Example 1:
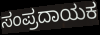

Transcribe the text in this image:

ಸಂಪ್ರದಾಯಕ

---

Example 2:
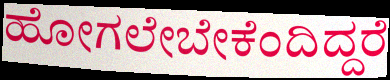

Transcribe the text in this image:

ಹೋಗಲೇಬೇಕೆಂದಿದ್ದರೆ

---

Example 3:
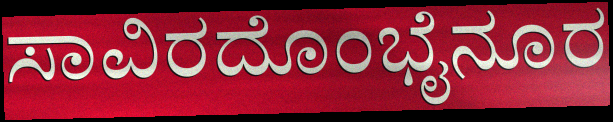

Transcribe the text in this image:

ಸಾವಿರದೊಂಭೈನೂರ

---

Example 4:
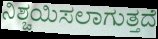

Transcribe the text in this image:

ನಿಶ್ಚಯಿಸಲಾಗುತ್ತದೆ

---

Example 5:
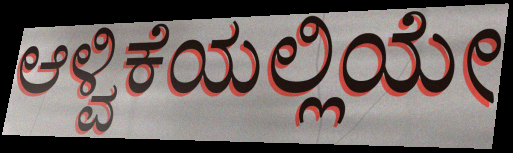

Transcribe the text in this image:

ಆಳ್ವಿಕೆಯಲ್ಲಿಯೇ